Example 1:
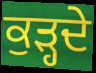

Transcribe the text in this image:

ਕੁੜ੍ਹਦੇ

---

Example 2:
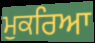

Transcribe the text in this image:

ਮੁਕਰਿਆ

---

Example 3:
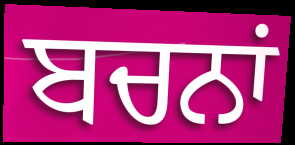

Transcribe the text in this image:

ਬਚਨਾਂ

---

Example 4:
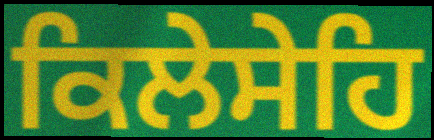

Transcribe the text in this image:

ਕਿਲੇਸੇਹਿ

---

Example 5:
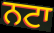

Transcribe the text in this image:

ਨਟਾ